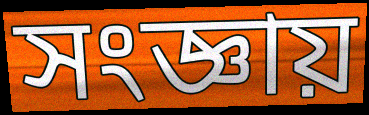
সংজ্ঞায়